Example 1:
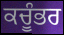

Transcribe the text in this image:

ਕਚੂੰਭਰ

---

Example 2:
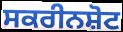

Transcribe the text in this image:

ਸਕਰੀਨਸ਼ੋਟ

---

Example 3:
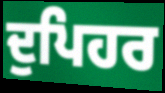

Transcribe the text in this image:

ਦੁਪਿਹਰ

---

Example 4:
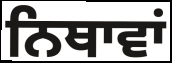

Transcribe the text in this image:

ਨਿਥਾਵਾਂ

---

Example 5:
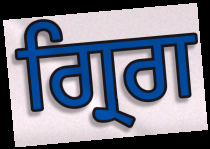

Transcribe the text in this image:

ਗ੍ਰਿਗ